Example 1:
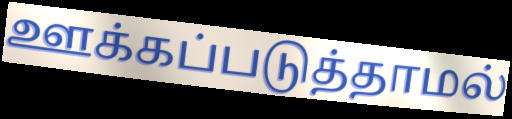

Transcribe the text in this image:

ஊக்கப்படுத்தாமல்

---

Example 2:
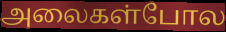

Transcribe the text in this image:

அலைகள்போல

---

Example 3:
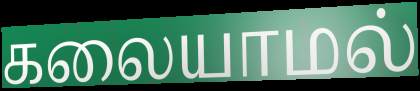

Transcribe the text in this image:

கலையாமல்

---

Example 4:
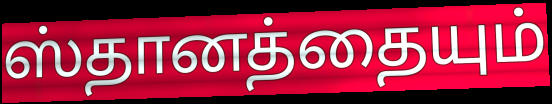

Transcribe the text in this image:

ஸ்தானத்தையும்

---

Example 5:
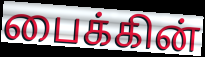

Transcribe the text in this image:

பைக்கின்